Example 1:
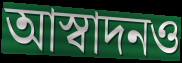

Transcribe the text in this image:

আস্বাদনও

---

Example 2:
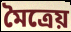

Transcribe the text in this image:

মৈত্রেয়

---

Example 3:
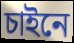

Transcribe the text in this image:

চাইনে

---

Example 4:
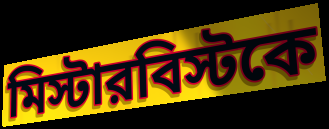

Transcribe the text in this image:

মিস্টারবিস্টকে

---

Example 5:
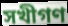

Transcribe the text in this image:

সখীগণ